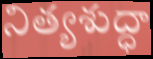
నిత్యశుద్ధా